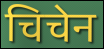
चिचेन